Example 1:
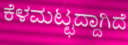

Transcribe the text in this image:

ಕೆಳಮಟ್ಟದ್ದಾಗಿದೆ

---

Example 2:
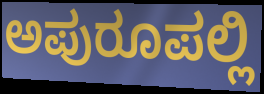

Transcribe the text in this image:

ಅಪುರೂಪಲ್ಲಿ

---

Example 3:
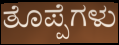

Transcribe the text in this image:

ತೊಪ್ಪೆಗಳು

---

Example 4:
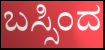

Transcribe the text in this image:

ಬಸ್ಸಿಂದ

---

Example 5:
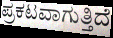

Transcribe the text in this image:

ಪ್ರಕಟವಾಗುತ್ತಿದೆ